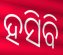
ହସିବି